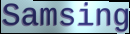
Samsing